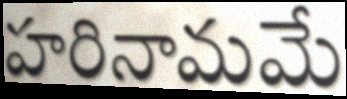
హరినామమే